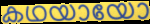
കഥയായോ